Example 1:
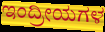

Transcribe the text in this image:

ಇಂದ್ರೀಯಗಳ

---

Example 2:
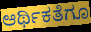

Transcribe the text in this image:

ಆರ್ಥಿಕತೆಗೂ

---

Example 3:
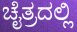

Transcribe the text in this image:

ಚೈತ್ರದಲ್ಲಿ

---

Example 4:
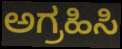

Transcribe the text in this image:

ಅಗ್ರಹಿಸಿ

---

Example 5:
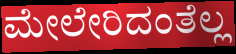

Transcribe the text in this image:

ಮೇಲೇರಿದಂತೆಲ್ಲ